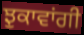
ਝੁਕਾਵਾਂਗੀ